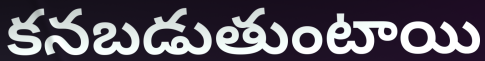
కనబడుతుంటాయి